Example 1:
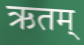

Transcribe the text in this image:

ऋतम्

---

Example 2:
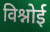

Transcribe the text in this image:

विश्नोई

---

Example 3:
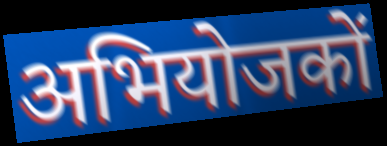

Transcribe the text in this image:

अभियोजकों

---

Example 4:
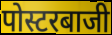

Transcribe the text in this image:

पोस्टरबाजी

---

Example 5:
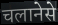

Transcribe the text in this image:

चलानेसे